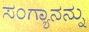
ಸಂಗ್ಯಾನನ್ನು